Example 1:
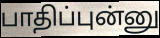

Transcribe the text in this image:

பாதிப்புன்னு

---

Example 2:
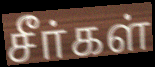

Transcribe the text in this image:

சீர்கள்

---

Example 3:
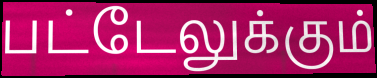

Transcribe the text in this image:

பட்டேலுக்கும்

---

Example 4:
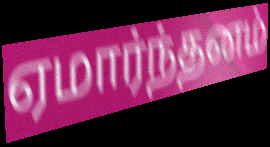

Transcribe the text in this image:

ஏமார்ந்தனம்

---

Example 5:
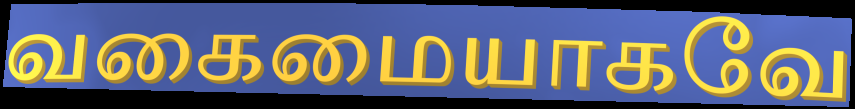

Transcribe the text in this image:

வகைமையாகவே